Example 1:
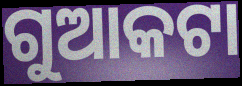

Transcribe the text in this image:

ଗୁଆକଟା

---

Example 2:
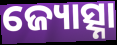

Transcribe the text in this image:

ଜ୍ୟୋତ୍ସ୍ନା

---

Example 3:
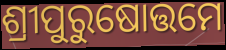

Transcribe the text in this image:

ଶ୍ରୀପୁରୁଷୋତ୍ତମେ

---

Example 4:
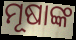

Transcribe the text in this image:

ମୂଷାଙ୍କ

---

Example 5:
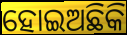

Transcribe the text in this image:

ହୋଇଅଛିକି